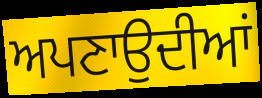
ਅਪਣਾਉਦੀਆਂ